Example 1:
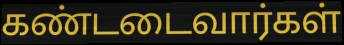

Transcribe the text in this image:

கண்டடைவார்கள்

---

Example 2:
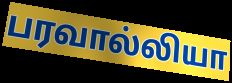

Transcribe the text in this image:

பரவால்லியா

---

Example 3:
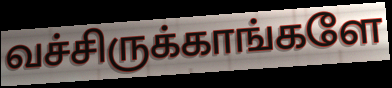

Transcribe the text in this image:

வச்சிருக்காங்களே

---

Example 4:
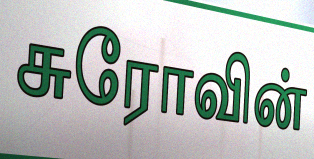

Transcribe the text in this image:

சுரோவின்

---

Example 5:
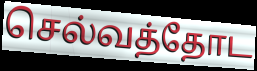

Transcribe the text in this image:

செல்வத்தோட